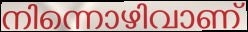
നിന്നൊഴിവാണ്